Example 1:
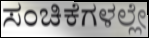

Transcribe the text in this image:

ಸಂಚಿಕೆಗಳಲ್ಲೇ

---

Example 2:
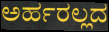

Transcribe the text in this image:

ಅರ್ಹರಲ್ಲದ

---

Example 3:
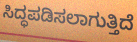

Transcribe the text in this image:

ಸಿದ್ಧಪಡಿಸಲಾಗುತ್ತಿದೆ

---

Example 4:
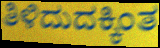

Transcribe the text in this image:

ತಿಳಿದುದಕ್ಕಿಂತ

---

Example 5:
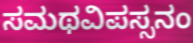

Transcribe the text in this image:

ಸಮಥವಿಪಸ್ಸನಂ